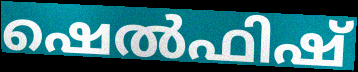
ഷെൽഫിഷ്